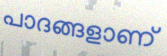
പാദങ്ങളാണ്